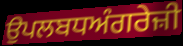
ਉਪਲਬਧਅੰਗਰੇਜ਼ੀ